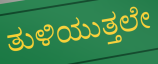
ತುಳಿಯುತ್ತಲೇ